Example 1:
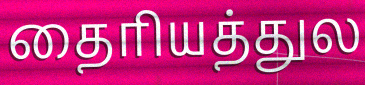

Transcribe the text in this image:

தைரியத்துல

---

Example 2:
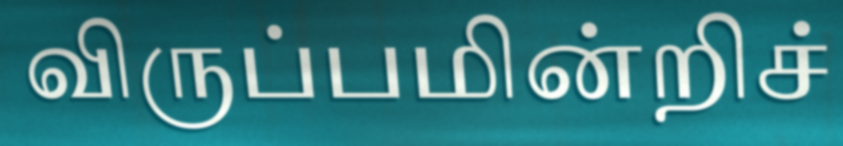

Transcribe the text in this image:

விருப்பமின்றிச்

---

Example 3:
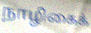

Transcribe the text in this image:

நாழிகைக்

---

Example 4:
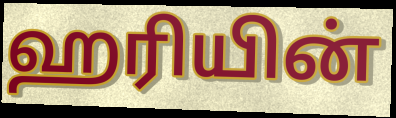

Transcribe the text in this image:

ஹரியின்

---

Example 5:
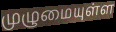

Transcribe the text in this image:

முழுமையுள்ள